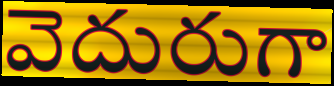
వెదురుగా